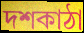
দশকাঠা